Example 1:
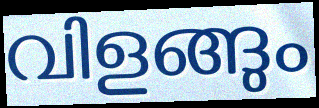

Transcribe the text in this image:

വിളങ്ങും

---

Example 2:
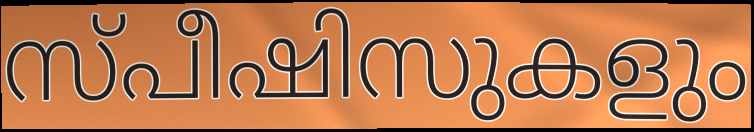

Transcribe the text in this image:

സ്പീഷിസുകളും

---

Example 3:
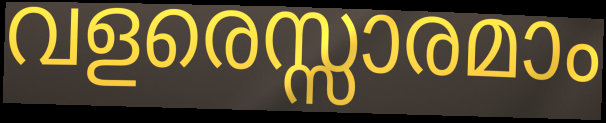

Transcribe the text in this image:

വളരെസ്സാരമാം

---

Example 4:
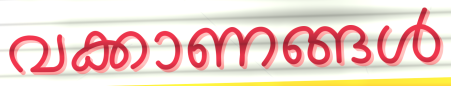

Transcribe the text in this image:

വക്കാണങ്ങൾ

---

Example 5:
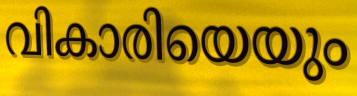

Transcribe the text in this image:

വികാരിയെയും